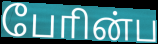
பேரின்ப